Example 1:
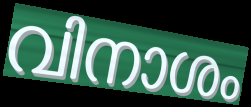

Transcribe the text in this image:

വിനാശം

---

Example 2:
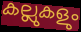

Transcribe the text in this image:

കല്ലുകളും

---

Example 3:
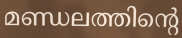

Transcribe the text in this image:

മണ്ഡലത്തിന്റെ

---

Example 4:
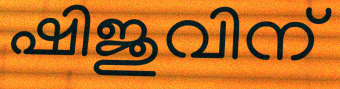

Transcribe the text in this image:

ഷിജുവിന്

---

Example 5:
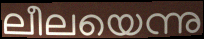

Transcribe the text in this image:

ലീലയെന്നു